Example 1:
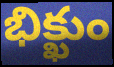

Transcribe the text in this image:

భిక్ఖుం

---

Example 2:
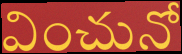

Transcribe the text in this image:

వించునో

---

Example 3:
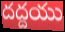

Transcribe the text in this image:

దద్దయు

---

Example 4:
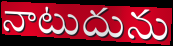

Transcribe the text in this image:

నాటుదును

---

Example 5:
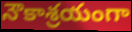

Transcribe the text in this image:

నౌకాశ్రయంగా